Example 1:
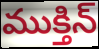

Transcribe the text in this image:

ముక్తిన్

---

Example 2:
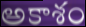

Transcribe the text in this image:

అకాశం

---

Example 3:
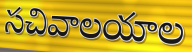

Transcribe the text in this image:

సచివాలయాల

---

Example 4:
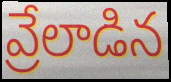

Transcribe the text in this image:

వ్రేలాడిన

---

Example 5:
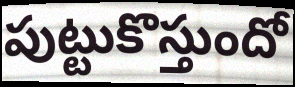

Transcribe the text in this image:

పుట్టుకొస్తుందో